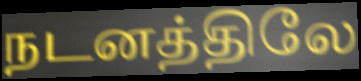
நடனத்திலே